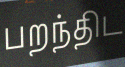
பறந்திட